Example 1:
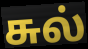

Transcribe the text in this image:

சுல்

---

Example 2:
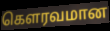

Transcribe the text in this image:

கெளரவமான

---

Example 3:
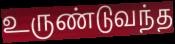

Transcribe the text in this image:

உருண்டுவந்த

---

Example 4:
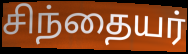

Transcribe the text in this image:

சிந்தையர்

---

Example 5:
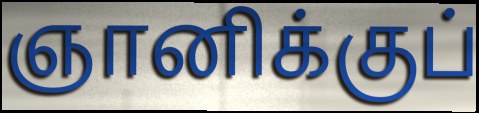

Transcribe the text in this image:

ஞானிக்குப்